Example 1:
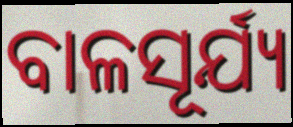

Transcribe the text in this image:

ବାଳସୂର୍ଯ୍ୟ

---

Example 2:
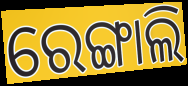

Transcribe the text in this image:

ରେଙ୍ଗାଲି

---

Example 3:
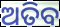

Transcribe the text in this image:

ଅତିବ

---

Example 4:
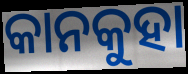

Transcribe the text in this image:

କାନକୁହା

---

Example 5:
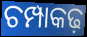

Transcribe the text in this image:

ଚମ୍ପାକଢ଼